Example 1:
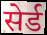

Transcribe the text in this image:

सेर्ड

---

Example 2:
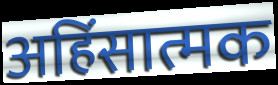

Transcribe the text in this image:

अहिंसात्मक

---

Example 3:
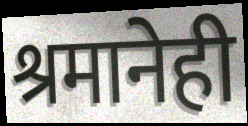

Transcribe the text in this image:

श्रमानेही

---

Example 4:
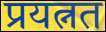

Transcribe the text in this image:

प्रयत्नत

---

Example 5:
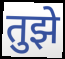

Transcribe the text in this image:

तुझे